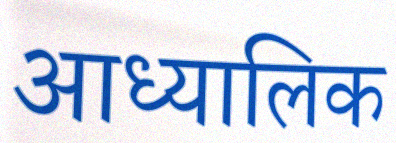
आध्यालिक